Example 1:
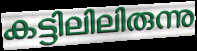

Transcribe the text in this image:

കട്ടിലിലിരുന്നു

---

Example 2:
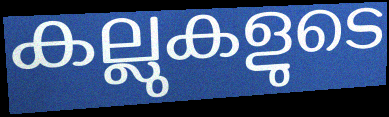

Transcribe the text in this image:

കല്ലുകളുടെ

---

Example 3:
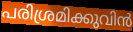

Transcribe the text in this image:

പരിശ്രമിക്കുവിൻ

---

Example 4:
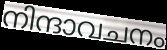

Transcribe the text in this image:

നിന്ദാവചനം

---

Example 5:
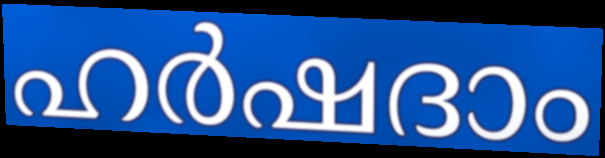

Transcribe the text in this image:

ഹർഷദാം